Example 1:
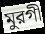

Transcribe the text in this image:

মুরগী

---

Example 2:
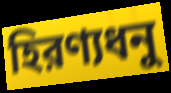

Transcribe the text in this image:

হিরণ্যধনু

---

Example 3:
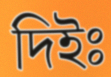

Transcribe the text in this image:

দিইঃ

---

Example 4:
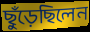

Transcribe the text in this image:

ছুঁড়েছিলেন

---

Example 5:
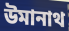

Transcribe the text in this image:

উমানাথ